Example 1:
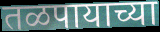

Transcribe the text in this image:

तळपायाच्या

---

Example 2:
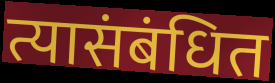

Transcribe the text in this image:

त्यासंबंधित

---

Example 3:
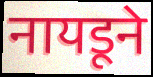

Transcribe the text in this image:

नायडूने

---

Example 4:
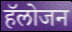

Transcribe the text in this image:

हॅलोजन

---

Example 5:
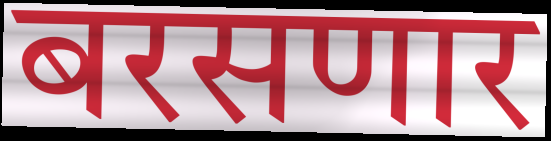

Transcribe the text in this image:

बरसणार